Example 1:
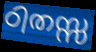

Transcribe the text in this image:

ഠിതസ്സ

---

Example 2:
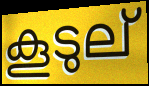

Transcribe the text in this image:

കൂടുല്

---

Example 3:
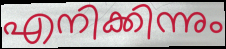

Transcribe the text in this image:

എനിക്കിന്നും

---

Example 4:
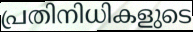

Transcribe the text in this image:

പ്രതിനിധികളുടെ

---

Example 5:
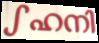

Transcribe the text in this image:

ഽഹനി